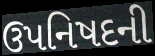
ઉપનિષદની